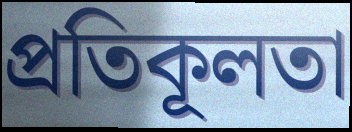
প্রতিকূলতা